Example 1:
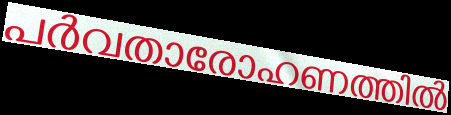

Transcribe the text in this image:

പർവതാരോഹണത്തിൽ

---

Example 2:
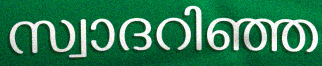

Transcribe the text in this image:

സ്വാദറിഞ്ഞ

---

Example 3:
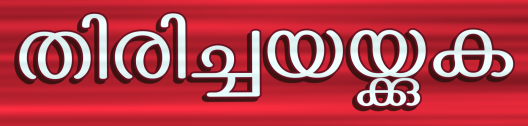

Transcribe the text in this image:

തിരിച്ചയയ്ക്കുക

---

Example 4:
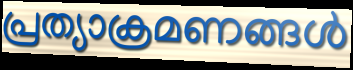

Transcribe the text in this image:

പ്രത്യാക്രമണങ്ങൾ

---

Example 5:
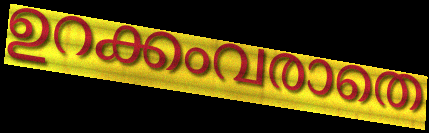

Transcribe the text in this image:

ഉറക്കംവരാതെ